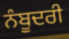
ਨੰਬੂਦਰੀ